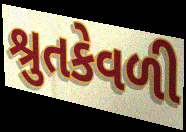
શ્રુતકેવળી